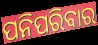
ପନିପରିବାର